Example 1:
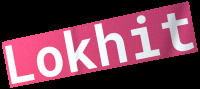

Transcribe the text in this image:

Lokhit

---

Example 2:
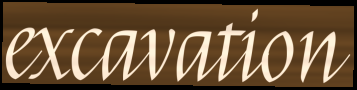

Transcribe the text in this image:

excavation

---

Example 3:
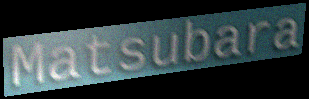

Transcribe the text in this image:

Matsubara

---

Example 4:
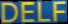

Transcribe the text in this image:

DELF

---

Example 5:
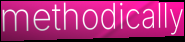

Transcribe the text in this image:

methodically